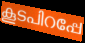
കൂടപിറപ്പേ